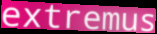
extremus